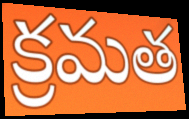
క్రమత